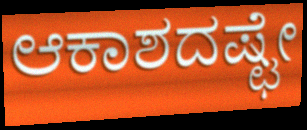
ಆಕಾಶದಷ್ಟೇ